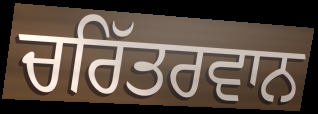
ਚਰਿੱਤਰਵਾਨ